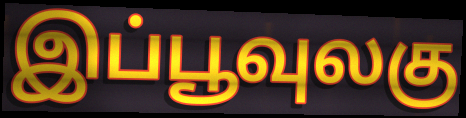
இப்பூவுலகு